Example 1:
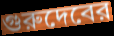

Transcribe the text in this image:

গুরুদেবের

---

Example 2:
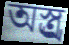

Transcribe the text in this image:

অস্ত্র্র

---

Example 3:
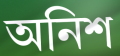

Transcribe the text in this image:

অনিশ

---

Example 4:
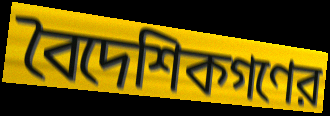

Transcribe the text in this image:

বৈদেশিকগণের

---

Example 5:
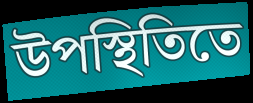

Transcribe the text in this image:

উপস্থিতিতে